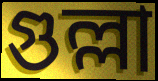
গুল্লা